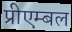
प्रीएम्बल